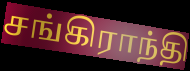
சங்கிராந்தி